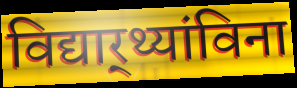
विद्यार्थ्यांविना